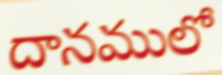
దానములో